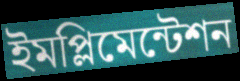
ইমপ্লিমেন্টেশন